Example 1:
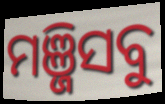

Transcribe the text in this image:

ମଞ୍ଜିସବୁ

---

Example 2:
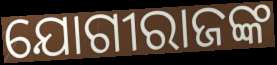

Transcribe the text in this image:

ଯୋଗୀରାଜଙ୍କ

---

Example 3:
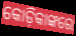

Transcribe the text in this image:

କୋଡ଼ିକାଙ୍କରେ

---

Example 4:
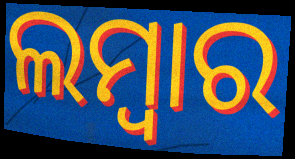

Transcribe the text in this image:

ଲମ୍ୱାର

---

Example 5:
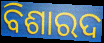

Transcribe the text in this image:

ବିଶାରଦ